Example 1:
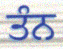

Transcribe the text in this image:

ਤੰਨ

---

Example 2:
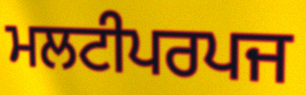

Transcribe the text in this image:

ਮਲਟੀਪਰਪਜ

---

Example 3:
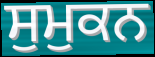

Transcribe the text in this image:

ਸੁਮੁਕਨ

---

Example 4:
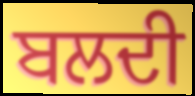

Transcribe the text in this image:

ਬਲਦੀ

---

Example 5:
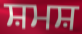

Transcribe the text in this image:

ਸ਼ਮਸ਼